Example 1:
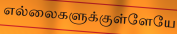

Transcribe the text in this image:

எல்லைகளுக்குள்ளேயே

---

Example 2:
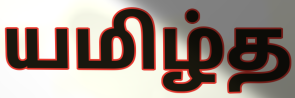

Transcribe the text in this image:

யமிழ்த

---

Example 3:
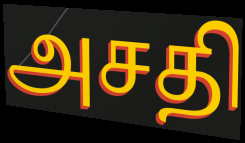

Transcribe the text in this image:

அசதி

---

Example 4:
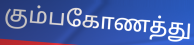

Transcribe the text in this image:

கும்பகோணத்து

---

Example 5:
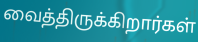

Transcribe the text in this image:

வைத்திருக்கிறார்கள்